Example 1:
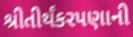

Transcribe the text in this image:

શ્રીતીર્થંકરપણાની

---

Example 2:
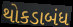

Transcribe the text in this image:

થોકડાબંધ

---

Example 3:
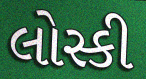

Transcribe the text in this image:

લોસ્કી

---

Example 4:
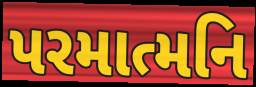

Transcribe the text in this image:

પરમાત્મનિ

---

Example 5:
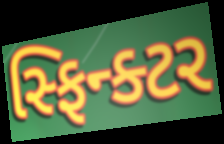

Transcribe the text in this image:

સ્ફિન્ક્ટર